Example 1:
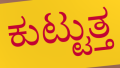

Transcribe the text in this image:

ಕುಟ್ಟುತ್ತ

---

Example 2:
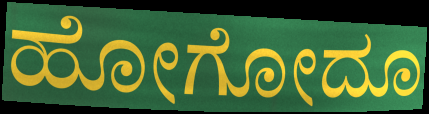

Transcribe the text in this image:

ಹೋಗೋದೂ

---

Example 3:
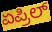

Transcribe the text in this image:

ಏಪ್ರಿಲ್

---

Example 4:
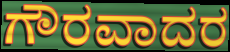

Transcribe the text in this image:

ಗೌರವಾದರ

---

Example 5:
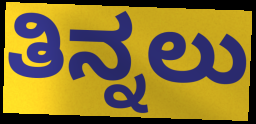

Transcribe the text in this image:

ತಿನ್ನಲು